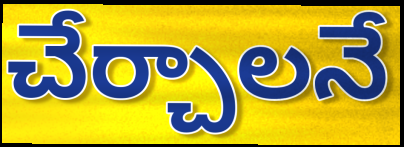
చేర్చాలనే